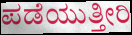
ಪಡೆಯುತ್ತೀರಿ